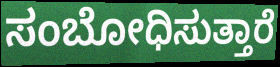
ಸಂಬೋಧಿಸುತ್ತಾರೆ